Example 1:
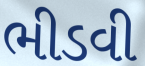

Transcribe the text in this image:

ભીડવી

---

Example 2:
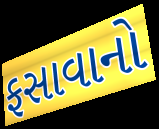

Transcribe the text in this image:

ફસાવાનો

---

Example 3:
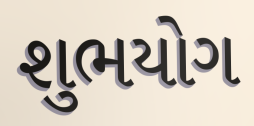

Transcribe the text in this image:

શુભયોગ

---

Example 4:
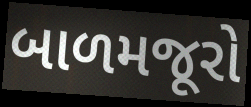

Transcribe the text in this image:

બાળમજૂરો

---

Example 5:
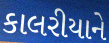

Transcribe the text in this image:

કાલરીયાને